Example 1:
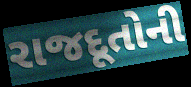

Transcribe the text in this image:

રાજદૂતોની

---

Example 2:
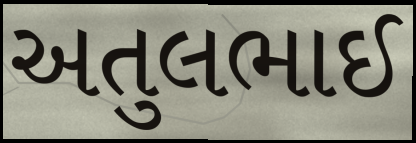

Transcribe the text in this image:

અતુલભાઈ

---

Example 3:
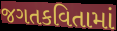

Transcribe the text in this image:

જગતકવિતામાં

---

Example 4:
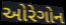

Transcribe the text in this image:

ઓરેગોન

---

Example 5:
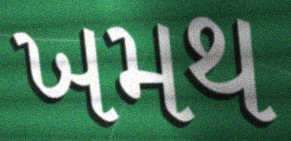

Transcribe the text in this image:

ખમથ